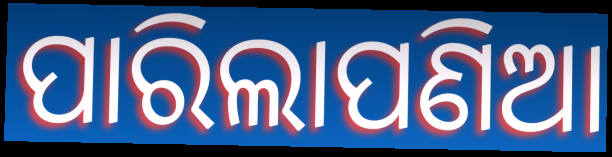
ପାରିଲାପଣିଆ